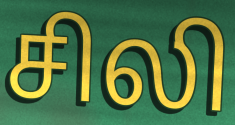
சிலி